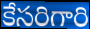
కేసరిగారి